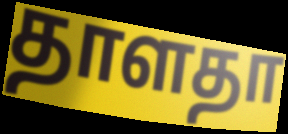
தாளதா